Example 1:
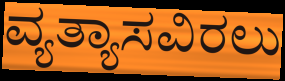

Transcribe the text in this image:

ವ್ಯತ್ಯಾಸವಿರಲು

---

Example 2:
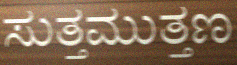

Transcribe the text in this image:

ಸುತ್ತಮುತ್ತಣ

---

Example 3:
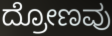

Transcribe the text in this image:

ದ್ರೋಣವು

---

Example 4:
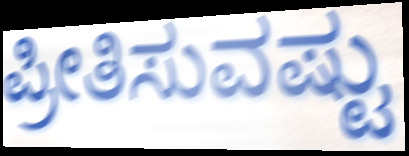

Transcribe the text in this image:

ಪ್ರೀತಿಸುವಷ್ಟು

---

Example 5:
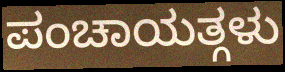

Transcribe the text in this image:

ಪಂಚಾಯತ್ಗಳು